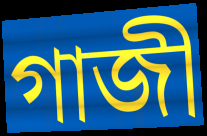
গাজী